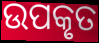
ଉପକୃତ